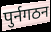
पुर्नगठन